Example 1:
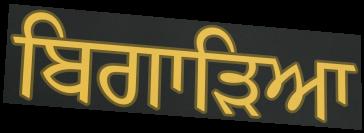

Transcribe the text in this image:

ਬਿਗਾੜਿਆ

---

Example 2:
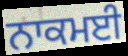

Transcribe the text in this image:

ਨਾਕਮਈ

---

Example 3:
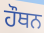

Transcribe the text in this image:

ਹੌਥਨ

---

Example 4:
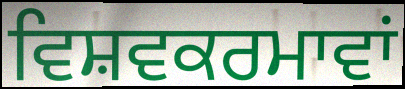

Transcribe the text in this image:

ਵਿਸ਼ਵਕਰਮਾਵਾਂ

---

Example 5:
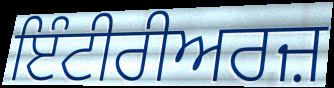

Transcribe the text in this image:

ਇੰਟੀਰੀਅਰਜ਼